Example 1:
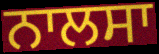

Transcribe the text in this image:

ਨਾਲਸਾ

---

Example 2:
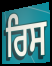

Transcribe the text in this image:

ਰਿਸ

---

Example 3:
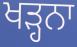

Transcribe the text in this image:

ਖੜ੍ਹਨਾ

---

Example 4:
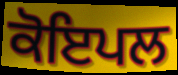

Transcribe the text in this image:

ਕੋਇਪਲ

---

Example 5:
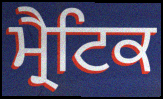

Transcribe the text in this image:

ਮ੍ਰੈਟਿਕ